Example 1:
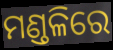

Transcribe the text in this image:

ମଣ୍ଡଳିରେ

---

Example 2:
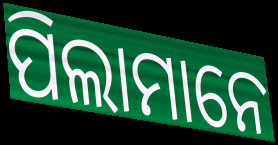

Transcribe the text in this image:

ପିଲାମାନେ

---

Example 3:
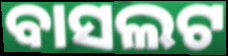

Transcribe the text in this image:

ବାସଲଟ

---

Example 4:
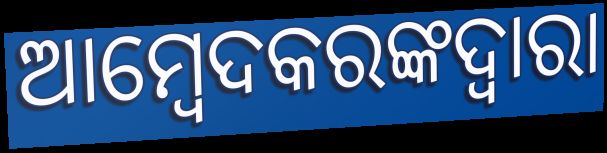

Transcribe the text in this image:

ଆମ୍ବେଦକରଙ୍କଦ୍ୱାରା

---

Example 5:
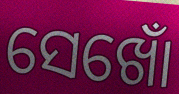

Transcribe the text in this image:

ସେଖୋଁ